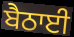
ਬੈਠਾਈ